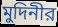
মুদিনীর